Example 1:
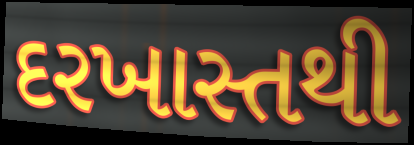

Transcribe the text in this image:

દરખાસ્તથી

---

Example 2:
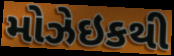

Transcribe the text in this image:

મોઝેઇકથી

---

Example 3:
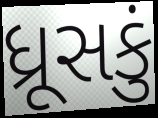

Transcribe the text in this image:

ધ્રૂસકું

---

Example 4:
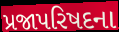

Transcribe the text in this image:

પ્રજાપરિષદના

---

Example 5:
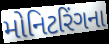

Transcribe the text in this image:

મોનિટરિંગના